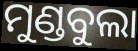
ମୁଣ୍ଡବୁଲା